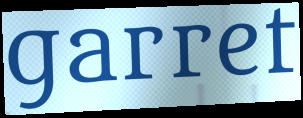
garret